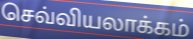
செவ்வியலாக்கம்